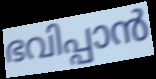
ഭവിപ്പാൻ